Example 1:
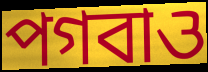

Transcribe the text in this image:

পগবাও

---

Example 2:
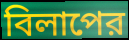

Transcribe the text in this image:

বিলাপের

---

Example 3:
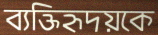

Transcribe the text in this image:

ব্যক্তিহৃদয়কে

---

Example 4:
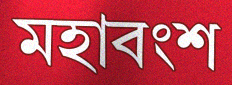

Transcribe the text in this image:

মহাবংশ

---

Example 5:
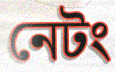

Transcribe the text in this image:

নেটং